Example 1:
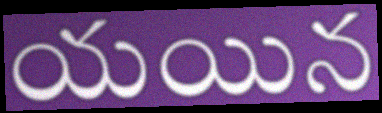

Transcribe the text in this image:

యయిన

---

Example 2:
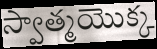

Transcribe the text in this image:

స్వాత్మయొక్క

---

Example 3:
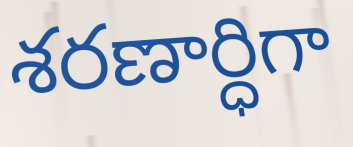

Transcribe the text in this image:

శరణార్ధిగా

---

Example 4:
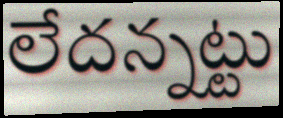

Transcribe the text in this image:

లేదన్నట్టు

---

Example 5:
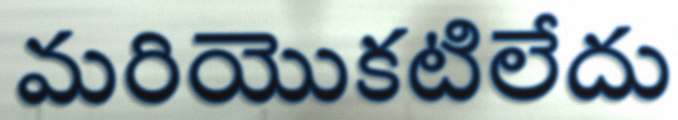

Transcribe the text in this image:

మరియొకటిలేదు